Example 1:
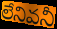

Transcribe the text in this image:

లేనివనీ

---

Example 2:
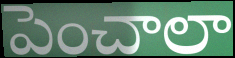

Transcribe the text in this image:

పెంచాలా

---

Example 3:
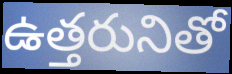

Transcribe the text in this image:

ఉత్తరునితో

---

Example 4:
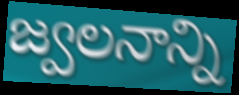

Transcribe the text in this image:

జ్వలనాన్ని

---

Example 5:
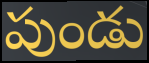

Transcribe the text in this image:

పుండు